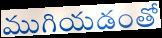
ముగియడంతో